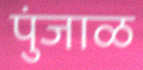
पुंजाळ